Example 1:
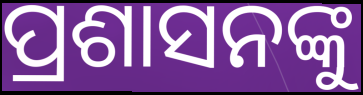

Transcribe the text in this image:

ପ୍ରଶାସନଙ୍କୁ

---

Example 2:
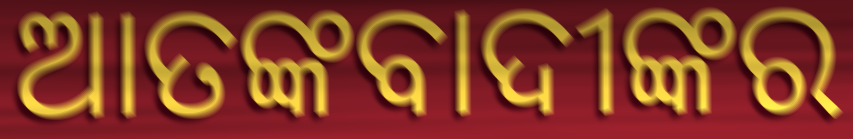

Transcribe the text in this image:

ଆତଙ୍କବାଦୀଙ୍କର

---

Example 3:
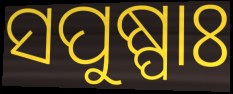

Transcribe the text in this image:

ସପୁଷ୍ପାଃ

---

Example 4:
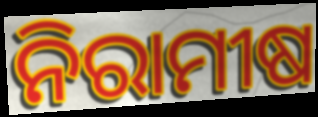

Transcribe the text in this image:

ନିରାମୀଷ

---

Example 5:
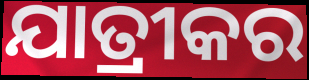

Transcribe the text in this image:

ଯାତ୍ରୀକର